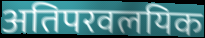
अतिपरवलयिक